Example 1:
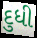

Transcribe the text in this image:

દુધી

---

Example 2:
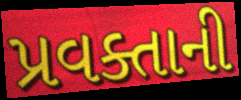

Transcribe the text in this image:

પ્રવક્તાની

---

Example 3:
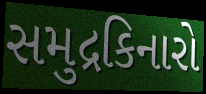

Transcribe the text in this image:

સમુદ્રકિનારો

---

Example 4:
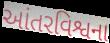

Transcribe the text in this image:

આંતરવિશ્વના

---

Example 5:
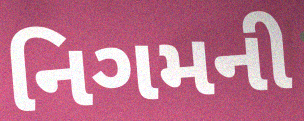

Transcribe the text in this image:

નિગમની